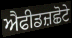
ਐਫੀਡਜ਼ਛੋਟੇ